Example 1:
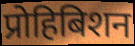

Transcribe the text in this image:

प्रोहिबिशन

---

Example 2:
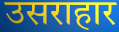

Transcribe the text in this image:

उसराहार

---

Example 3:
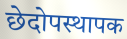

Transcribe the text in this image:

छेदोपस्थापक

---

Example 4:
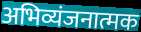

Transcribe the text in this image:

अभिव्यंजनात्मक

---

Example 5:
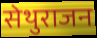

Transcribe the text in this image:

सेथुराजन